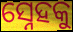
ସ୍ନେହକୁ